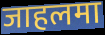
जाहलमा